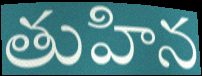
తుహిన